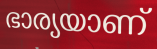
ഭാര്യയാണ്